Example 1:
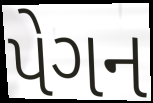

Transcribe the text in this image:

પેગન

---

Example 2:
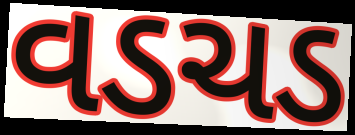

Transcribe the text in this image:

વડચડ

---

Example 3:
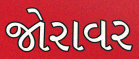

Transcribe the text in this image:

જોરાવર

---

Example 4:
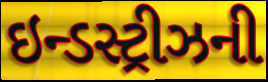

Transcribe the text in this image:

ઇન્ડસ્ટ્રીઝની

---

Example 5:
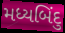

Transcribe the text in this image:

મધ્યબિંદુ